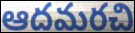
ఆదమరచి